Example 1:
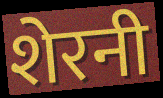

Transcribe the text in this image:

शेरनी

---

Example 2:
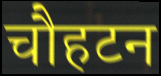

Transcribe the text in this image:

चौहटन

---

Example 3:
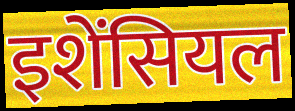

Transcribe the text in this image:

इशेंसियल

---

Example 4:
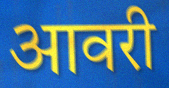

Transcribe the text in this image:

आवरी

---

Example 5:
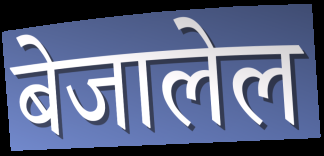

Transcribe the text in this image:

बेजालेल